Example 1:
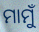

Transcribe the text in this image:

ମାମୁଁ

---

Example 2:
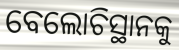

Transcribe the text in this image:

ବେଲୋଚିସ୍ଥାନକୁ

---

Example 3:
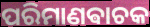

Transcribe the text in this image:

ପରିମାଣଵାଚକ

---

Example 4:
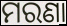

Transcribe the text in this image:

ମରଣା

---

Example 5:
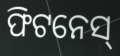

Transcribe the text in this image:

ଫିଟନେସ୍